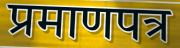
प्रमाणपत्र